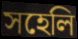
সহেলি